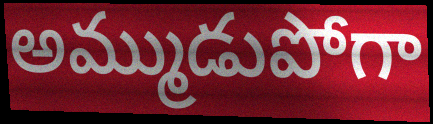
అమ్ముడుపోగా